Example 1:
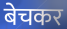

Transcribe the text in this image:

बेचकर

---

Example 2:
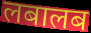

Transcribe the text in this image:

लबालब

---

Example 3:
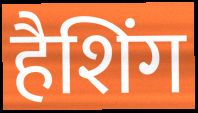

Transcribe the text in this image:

हैशिंग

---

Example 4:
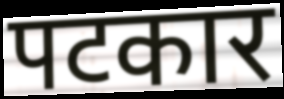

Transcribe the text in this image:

पटकार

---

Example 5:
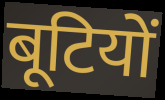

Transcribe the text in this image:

बूटियों